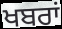
ਖਬਰਾਂ